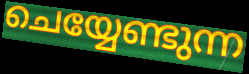
ചെയ്യേണ്ടുന്ന